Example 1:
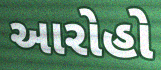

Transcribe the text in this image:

આરોહો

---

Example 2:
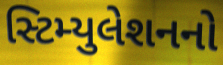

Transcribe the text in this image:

સ્ટિમ્યુલેશનનો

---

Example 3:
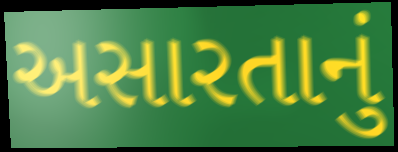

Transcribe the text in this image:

અસારતાનું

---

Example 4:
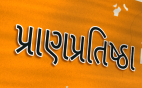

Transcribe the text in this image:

પ્રાણપ્રતિષ્ઠા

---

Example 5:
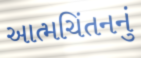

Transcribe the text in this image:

આત્મચિંતનનું